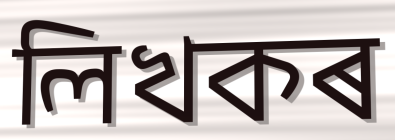
লিখকৰ